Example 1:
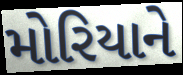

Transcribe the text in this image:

મોરિયાને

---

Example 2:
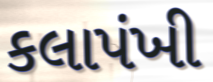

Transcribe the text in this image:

કલાપંખી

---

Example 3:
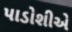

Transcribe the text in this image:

પાડોશીએ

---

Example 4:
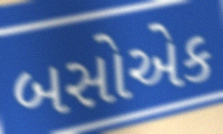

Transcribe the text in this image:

બસોએક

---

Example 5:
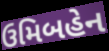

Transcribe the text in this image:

ઉમિબહેન